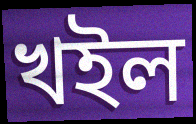
খইল